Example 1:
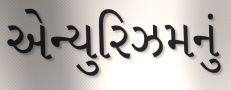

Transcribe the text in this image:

એન્યુરિઝમનું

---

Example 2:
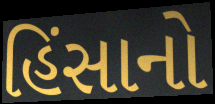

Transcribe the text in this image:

હિંસાનો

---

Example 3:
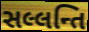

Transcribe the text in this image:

સલ્લન્તિ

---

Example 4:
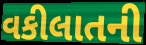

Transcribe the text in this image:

વકીલાતની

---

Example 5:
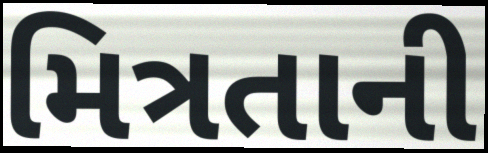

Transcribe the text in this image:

મિત્રતાની